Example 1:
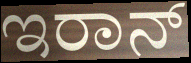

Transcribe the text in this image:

ಇರಾನ್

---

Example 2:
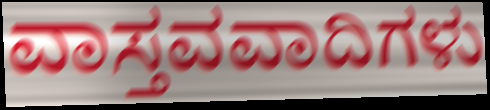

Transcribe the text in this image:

ವಾಸ್ತವವಾದಿಗಳು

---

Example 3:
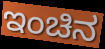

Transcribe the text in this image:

ಇಂಚಿನ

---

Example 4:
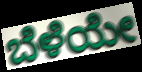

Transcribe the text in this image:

ಬೆಳೆಯೇ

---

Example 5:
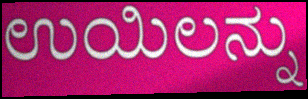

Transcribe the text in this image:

ಉಯಿಲನ್ನು